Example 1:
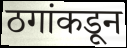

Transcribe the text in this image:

ठगांकडून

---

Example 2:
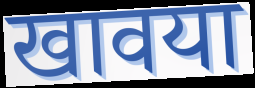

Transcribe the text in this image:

खावया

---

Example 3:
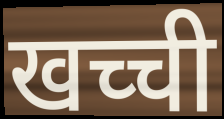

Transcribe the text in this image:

खच्ची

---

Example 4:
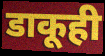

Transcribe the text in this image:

डाकूही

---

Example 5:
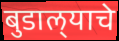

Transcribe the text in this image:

बुडाल्याचे